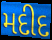
મદીદ